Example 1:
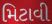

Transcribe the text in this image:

મિટાવી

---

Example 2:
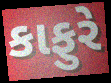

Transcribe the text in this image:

કાફુરે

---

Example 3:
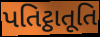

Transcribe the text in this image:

પતિટ્ઠાતૂતિ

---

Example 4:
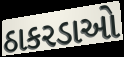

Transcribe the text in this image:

ઠાકરડાઓ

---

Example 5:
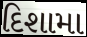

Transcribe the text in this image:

દિશામા